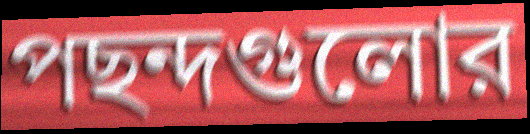
পছন্দগুলোর